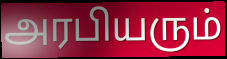
அரபியரும்